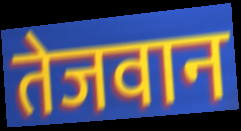
तेजवान